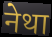
नेथा